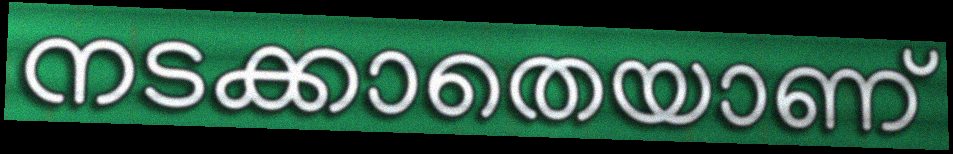
നടക്കാതെയാണ്